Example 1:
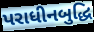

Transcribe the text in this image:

પરાધીનબુદ્ધિ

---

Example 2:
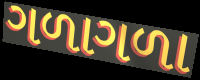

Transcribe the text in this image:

ગળાગળા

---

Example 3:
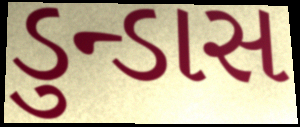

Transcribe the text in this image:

ડુન્ડાસ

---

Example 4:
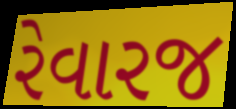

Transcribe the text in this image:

રેવારજ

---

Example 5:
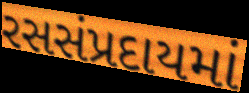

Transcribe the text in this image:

રસસંપ્રદાયમાં